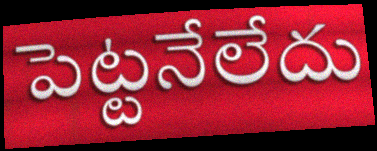
పెట్టనేలేదు